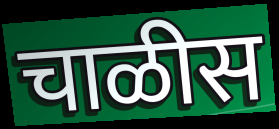
चाळीस